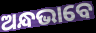
ଅନ୍ଧଭାବେ